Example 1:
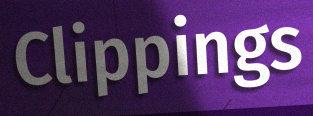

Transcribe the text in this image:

Clippings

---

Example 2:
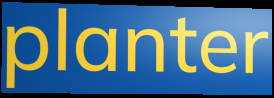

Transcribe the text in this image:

planter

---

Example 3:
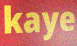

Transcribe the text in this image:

kaye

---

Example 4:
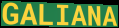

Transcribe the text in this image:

GALIANA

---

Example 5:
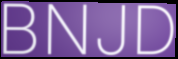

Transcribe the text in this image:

BNJD